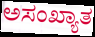
ಅಸಂಖ್ಯಾತ